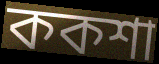
ককশা